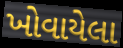
ખોવાયેલા